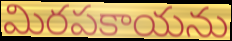
మిరపకాయను